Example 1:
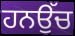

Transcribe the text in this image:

ਹਨਉੱਚ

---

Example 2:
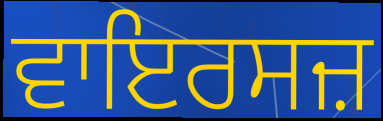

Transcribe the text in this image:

ਵਾਇਰਸਜ਼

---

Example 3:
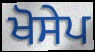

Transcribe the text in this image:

ਖੋਸੇਪ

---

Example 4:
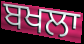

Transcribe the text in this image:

ਬਖਲਾ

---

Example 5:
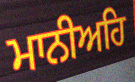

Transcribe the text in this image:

ਮਾਨੀਅਹਿ